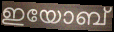
ഇയോബ്